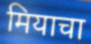
मियाचा